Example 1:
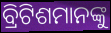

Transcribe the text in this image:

ବ୍ରିଟିଶମାନଙ୍କୁ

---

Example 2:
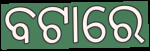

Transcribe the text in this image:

ବଟାରେ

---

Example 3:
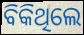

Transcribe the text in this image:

ବିକିଥିଲେ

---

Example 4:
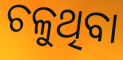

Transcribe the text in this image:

ଚଳୁଥିବା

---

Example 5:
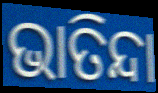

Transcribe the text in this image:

ଭାତିନ୍ଦା